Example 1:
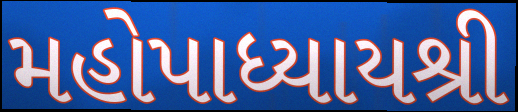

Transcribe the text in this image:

મહોપાધ્યાયશ્રી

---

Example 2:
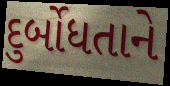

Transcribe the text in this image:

દુર્બોધતાને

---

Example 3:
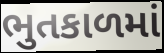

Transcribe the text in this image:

ભુતકાળમાં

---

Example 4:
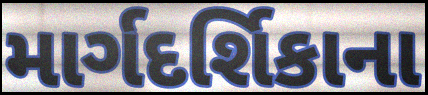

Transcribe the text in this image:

માર્ગદર્શિકાના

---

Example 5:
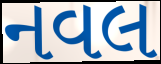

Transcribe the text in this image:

નવલ